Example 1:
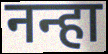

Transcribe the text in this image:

नन्हा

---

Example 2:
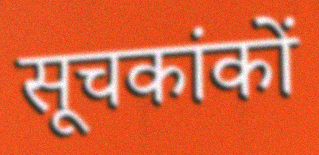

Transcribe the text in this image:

सूचकांकों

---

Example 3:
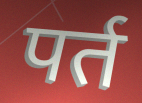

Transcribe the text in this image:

पर्त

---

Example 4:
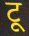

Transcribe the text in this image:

टू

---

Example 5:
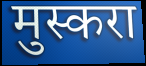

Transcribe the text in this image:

मुस्करा